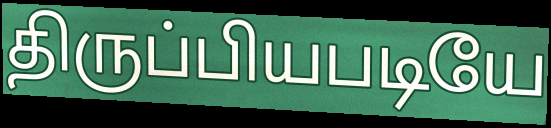
திருப்பியபடியே